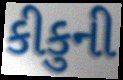
કીકુની